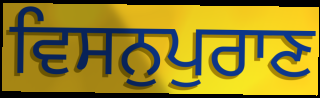
ਵਿਸਨੁਪੁਰਾਣ